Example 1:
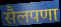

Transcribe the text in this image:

सैलपणा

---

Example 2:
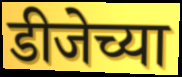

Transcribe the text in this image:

डीजेच्या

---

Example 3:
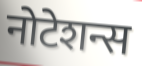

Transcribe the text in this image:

नोटेशन्स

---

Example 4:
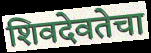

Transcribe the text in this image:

शिवदेवतेचा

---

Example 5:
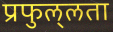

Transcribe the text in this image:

प्रफुल्लता